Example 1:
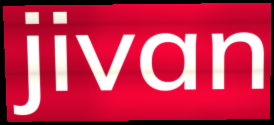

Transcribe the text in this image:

jivan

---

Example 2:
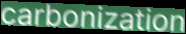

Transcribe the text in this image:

carbonization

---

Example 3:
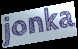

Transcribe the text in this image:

jonka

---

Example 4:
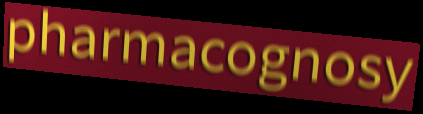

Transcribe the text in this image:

pharmacognosy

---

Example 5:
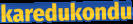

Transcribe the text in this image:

karedukondu